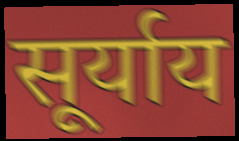
सूर्याय